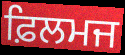
ਫ਼ਿਲਮਜ